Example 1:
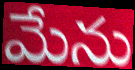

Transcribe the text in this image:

మేను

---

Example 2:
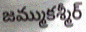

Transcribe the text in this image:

జమ్ముకశ్మీర్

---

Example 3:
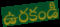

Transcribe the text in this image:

ఉరకండీ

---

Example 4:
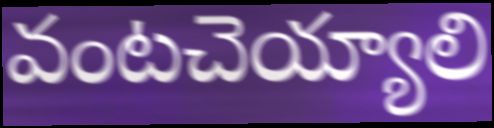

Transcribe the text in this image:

వంటచెయ్యాలి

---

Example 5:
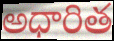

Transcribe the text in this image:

అధారిత